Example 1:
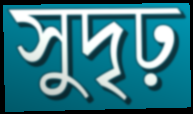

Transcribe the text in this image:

সুদৃঢ়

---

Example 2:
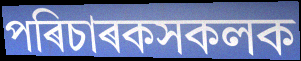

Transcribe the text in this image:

পৰিচাৰকসকলক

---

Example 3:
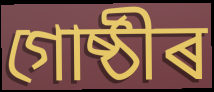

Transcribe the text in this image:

গোষ্ঠীৰ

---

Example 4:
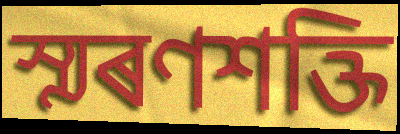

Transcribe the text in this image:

স্মৰণশক্তি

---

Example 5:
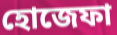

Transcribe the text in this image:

হোজেফা